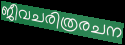
ജീവചരിത്രരചന